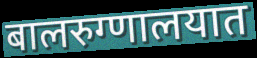
बालरुग्णालयात